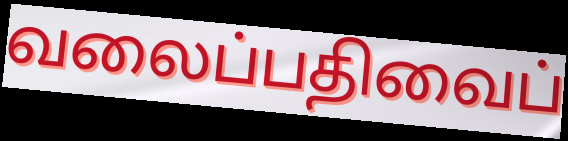
வலைப்பதிவைப்